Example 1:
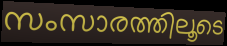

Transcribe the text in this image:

സംസാരത്തിലൂടെ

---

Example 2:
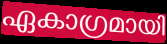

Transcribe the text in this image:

ഏകാഗ്രമായി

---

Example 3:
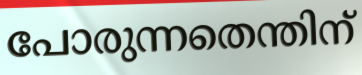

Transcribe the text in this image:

പോരുന്നതെന്തിന്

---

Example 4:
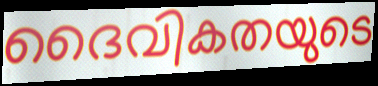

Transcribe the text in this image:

ദൈവികതയുടെ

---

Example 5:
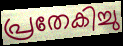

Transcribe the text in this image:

പ്രതേകിച്ചു